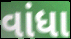
વાંધા